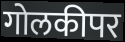
गोलकीपर